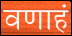
वणाहं